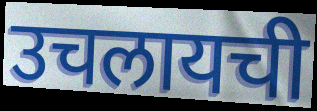
उचलायची